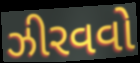
ઝીરવવો